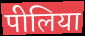
पीलिया